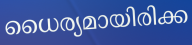
ധൈര്യമായിരിക്ക